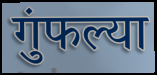
गुंफल्या